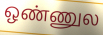
ஒண்ணுல